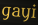
gayi